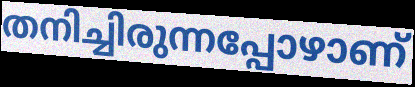
തനിച്ചിരുന്നപ്പോഴാണ്